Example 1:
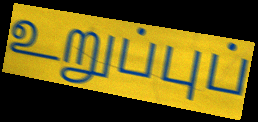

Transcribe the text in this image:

உறுப்புப்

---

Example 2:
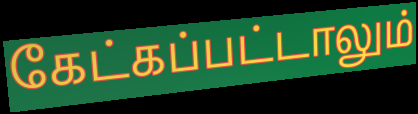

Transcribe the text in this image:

கேட்கப்பட்டாலும்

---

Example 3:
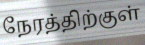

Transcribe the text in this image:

நேரத்திற்குள்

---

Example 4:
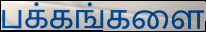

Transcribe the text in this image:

பக்கங்களை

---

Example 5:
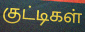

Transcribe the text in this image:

குட்டிகள்